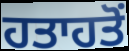
ਹਤਾਹਤੋਂ